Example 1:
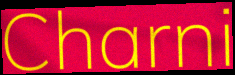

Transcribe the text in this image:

Charni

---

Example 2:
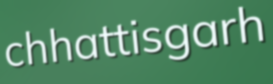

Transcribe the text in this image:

chhattisgarh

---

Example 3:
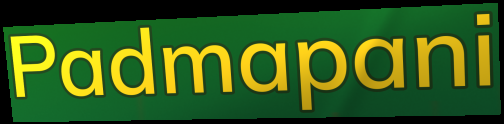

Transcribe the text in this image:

Padmapani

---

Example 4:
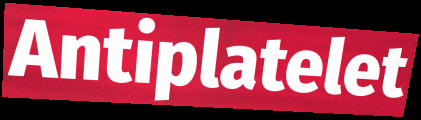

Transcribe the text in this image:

Antiplatelet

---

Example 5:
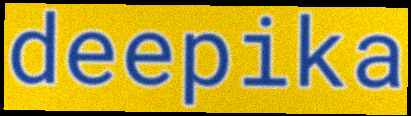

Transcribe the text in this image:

deepika